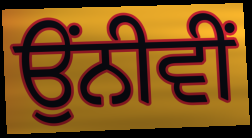
ਉੰਨੀਵੀਂ